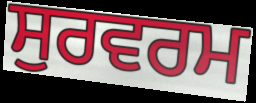
ਸੁਰਵਰਮ